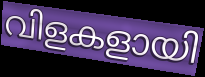
വിളകളായി